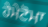
ਹੇਮੇਟੋਮਾ